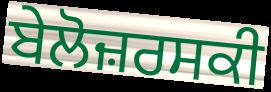
ਬੇਲੋਜ਼ਰਸਕੀ